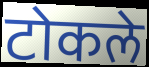
टोकले